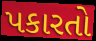
પકારતો